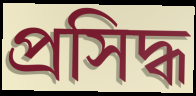
প্ৰসিদ্ধ